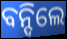
ବନ୍ଦିଲେ